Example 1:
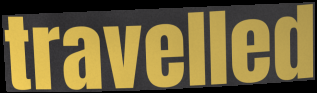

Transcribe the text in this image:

travelled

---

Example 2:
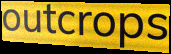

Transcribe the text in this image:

outcrops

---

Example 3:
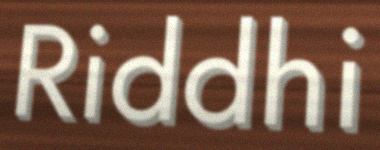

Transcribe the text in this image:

Riddhi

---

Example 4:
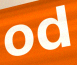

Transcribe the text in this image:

od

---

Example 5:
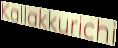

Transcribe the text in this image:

Kallakkurichi